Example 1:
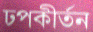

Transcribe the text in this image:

ঢপকীর্তন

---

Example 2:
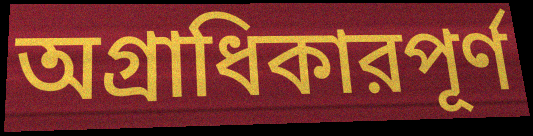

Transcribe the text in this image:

অগ্রাধিকারপূর্ণ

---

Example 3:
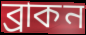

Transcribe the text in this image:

ব্রাকন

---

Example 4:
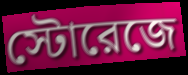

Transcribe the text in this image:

স্টোরেজে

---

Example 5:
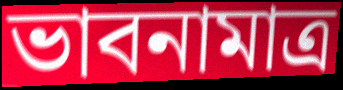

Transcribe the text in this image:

ভাবনামাত্র